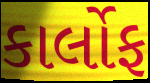
કાર્લોફ